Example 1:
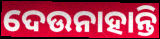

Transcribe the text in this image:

ଦେଉନାହାନ୍ତି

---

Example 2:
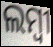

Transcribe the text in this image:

ଲମ୍ବୀ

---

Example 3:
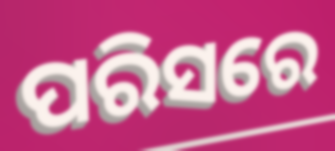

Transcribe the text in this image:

ପରିସରେ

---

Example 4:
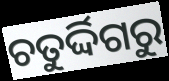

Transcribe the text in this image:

ଚତୁର୍ଦ୍ଦିଗରୁ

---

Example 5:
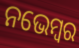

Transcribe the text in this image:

ନଭେମ୍ବର